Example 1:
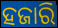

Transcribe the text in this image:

ହଜାରି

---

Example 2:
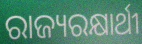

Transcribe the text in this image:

ରାଜ୍ୟରକ୍ଷାର୍ଥୀ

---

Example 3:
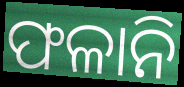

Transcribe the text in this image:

ଫଳାନି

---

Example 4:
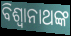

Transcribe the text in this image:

ବିଶ୍ୱାନାଥଙ୍କ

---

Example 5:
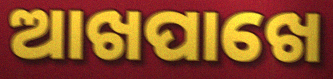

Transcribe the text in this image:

ଆଖପାଖେ